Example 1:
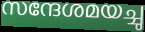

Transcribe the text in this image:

സന്ദേശമയച്ചു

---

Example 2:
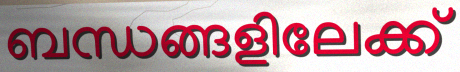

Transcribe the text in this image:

ബന്ധങ്ങളിലേക്ക്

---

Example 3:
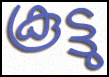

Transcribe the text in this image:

കൂട്ടു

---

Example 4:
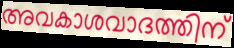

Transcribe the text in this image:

അവകാശവാദത്തിന്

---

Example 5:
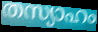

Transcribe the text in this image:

തസ്യാഹം